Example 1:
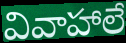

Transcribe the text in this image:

వివాహాలే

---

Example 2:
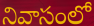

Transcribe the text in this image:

నివాసంలో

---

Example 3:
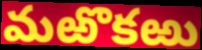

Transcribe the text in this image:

మఱొకఱు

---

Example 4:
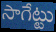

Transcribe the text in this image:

సాగేట్టు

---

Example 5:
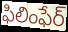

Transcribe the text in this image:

ఫిలింఫేర్